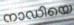
നാഡിയെ